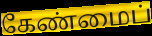
கேண்மைப்